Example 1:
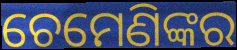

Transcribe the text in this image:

ଚେମେଣିଙ୍କର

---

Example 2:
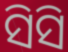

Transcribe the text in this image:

ସିସି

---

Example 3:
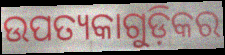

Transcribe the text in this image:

ଉପତ୍ୟକାଗୁଡ଼ିକର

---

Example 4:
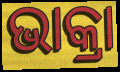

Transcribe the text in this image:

ଭାକ୍ରା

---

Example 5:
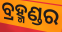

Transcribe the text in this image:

ବ୍ରହ୍ମଣ୍ଡର